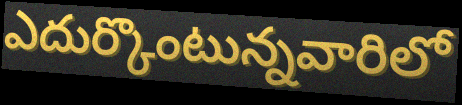
ఎదుర్కొంటున్నవారిలో